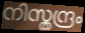
നിസ്തന്ദ്രം